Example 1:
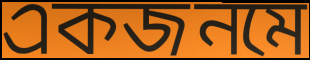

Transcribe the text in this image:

একজনমে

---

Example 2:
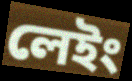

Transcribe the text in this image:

লেইং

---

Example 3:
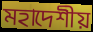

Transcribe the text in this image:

মহাদেশীয়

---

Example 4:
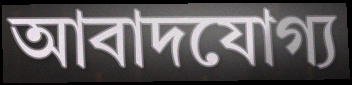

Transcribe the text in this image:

আবাদযোগ্য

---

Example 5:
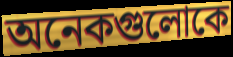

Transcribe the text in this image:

অনেকগুলোকে